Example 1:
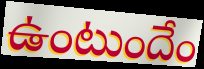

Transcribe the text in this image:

ఉంటుందేం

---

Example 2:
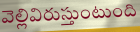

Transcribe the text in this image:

వెల్లివిరుస్తుంటుంది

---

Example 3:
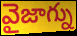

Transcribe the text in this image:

వైజాగ్ను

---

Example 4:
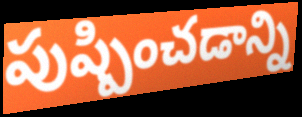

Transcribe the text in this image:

పుష్పించడాన్ని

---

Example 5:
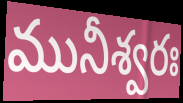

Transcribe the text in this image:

మునీశ్వరః